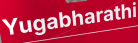
Yugabharathi